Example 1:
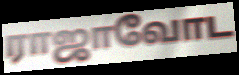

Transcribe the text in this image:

ராஜாவோட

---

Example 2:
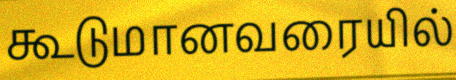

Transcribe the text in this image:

கூடுமானவரையில்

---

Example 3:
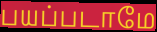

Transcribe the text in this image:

பயப்படாமே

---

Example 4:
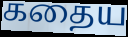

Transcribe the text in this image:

கதைய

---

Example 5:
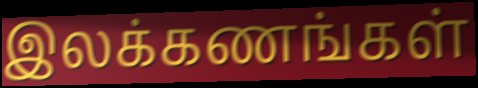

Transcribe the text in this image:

இலக்கணங்கள்